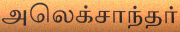
அலெக்சாந்தர்